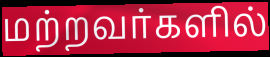
மற்றவர்களில்